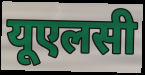
यूएलसी